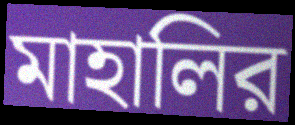
মাহালির